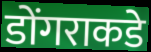
डोंगराकडे